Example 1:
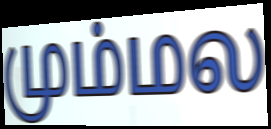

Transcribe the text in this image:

மும்மல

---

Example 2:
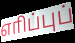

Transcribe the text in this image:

எரிப்புப்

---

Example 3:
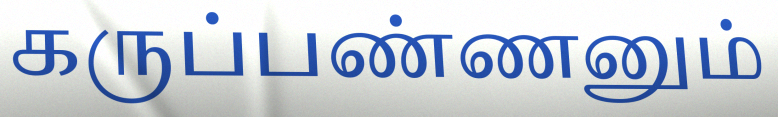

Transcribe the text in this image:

கருப்பண்ணனும்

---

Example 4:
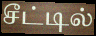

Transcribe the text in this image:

சீட்டில்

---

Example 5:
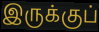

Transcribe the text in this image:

இருக்குப்